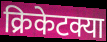
क्रिकेटक्या